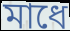
মাধে